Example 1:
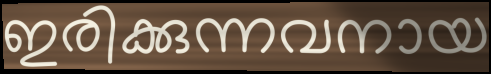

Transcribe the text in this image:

ഇരിക്കുന്നവനായ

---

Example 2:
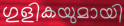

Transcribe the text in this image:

ഗുളികയുമായി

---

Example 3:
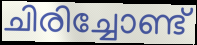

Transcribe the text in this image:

ചിരിച്ചോണ്ട്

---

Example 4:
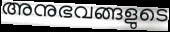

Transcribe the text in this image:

അനുഭവങ്ങളുടെ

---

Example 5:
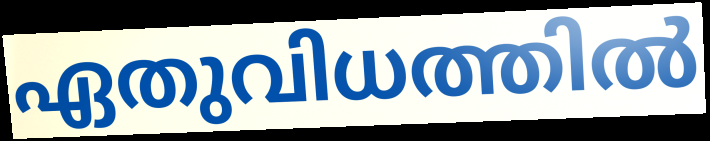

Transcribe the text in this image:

ഏതുവിധത്തിൽ